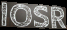
IOSR